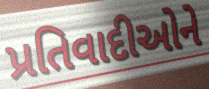
પ્રતિવાદીઓને